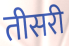
तीसरी